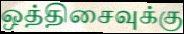
ஒத்திசைவுக்கு